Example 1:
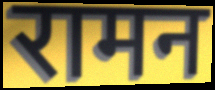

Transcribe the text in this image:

रामन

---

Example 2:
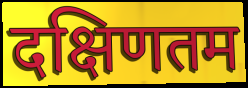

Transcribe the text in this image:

दक्षिणतम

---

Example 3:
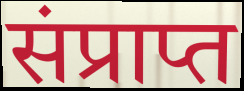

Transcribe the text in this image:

संप्राप्त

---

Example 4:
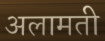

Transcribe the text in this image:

अलामती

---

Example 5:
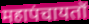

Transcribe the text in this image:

महापंचायतों